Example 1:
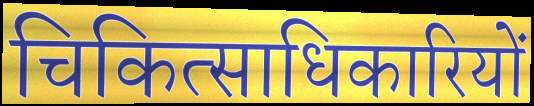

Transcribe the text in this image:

चिकित्साधिकारियों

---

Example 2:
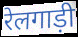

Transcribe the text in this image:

रेलगाड़ी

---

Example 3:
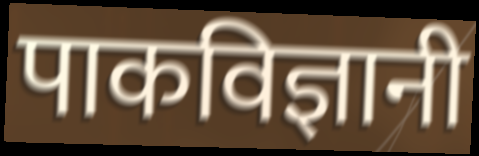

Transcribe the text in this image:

पाकविज्ञानी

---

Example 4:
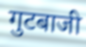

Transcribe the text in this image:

गुटबाजी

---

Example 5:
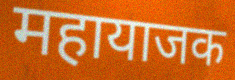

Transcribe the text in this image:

महायाजक